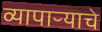
व्यापाऱ्याचे